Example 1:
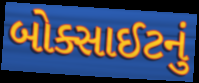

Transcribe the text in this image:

બોક્સાઈટનું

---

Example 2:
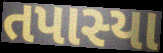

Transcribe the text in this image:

તપાસ્યા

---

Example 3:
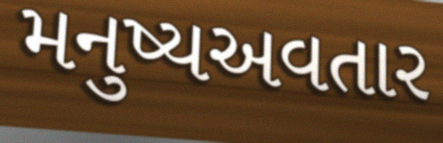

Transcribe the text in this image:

મનુષ્યઅવતાર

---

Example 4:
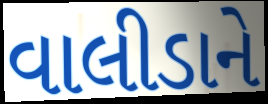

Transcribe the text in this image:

વાલીડાને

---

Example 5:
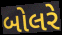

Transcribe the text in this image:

બોલરે